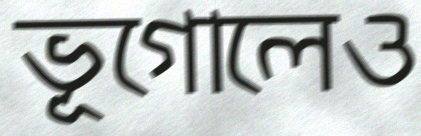
ভূগোলেও